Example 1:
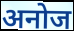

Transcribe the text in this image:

अनोज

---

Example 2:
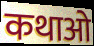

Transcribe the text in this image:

कथाओ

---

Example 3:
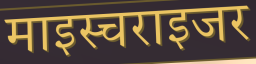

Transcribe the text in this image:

माइस्चराइजर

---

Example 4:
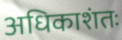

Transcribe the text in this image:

अधिकाशंतः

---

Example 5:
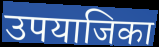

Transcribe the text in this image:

उपयाजिका